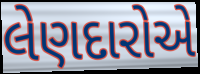
લેણદારોએ